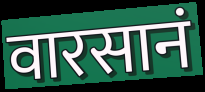
वारसानं